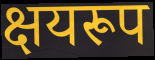
क्षयरूप